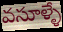
వసూళ్ళే